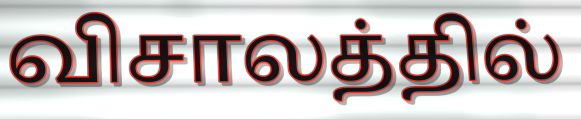
விசாலத்தில்